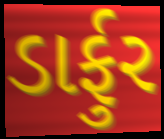
ડાર્ફુર